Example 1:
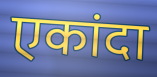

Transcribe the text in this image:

एकांदा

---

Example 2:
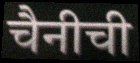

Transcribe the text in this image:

चैनीची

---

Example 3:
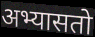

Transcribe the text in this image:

अभ्यासतो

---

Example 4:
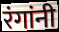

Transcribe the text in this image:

रंगांनी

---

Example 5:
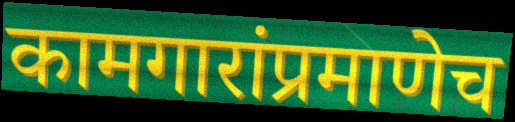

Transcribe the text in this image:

कामगारांप्रमाणेच